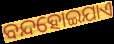
ବନ୍ଦହୋଇଯାଏ